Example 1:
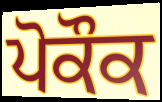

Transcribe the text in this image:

ਪੋਕੌਕ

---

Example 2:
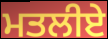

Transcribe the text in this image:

ਮਤਲੀਏ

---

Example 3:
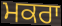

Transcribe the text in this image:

ਮਕਰਾ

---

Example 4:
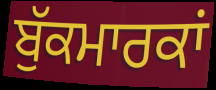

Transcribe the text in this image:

ਬੁੱਕਮਾਰਕਾਂ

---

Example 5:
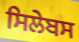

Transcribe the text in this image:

ਸਿਲੇਬਸ